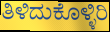
ತಿಳಿದುಕೊಳ್ಳಿರಿ